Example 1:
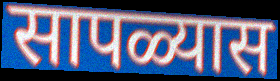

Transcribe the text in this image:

सापळ्यास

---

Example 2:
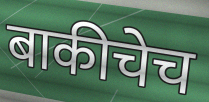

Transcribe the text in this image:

बाकीचेच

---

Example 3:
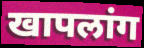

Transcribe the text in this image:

खापलांग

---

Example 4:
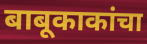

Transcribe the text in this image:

बाबूकाकांचा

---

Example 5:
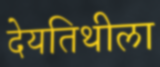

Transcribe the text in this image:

देयतिथीला